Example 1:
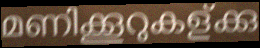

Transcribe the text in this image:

മണിക്കൂറുകള്ക്കു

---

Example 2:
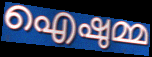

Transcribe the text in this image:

ഐഷുമ്മ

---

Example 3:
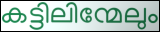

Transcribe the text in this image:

കട്ടിലിന്മേലും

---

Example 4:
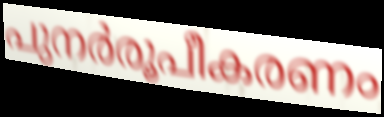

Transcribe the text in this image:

പുനർരൂപീകരണം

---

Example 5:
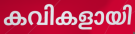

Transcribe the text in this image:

കവികളായി